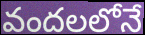
వందలలోనే